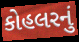
કોહલરનું